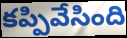
కప్పివేసింది